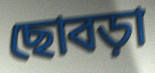
ছোবড়া